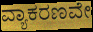
ವ್ಯಾಕರಣವೇ